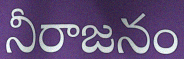
నీరాజనం